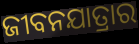
ଜୀବନଯାତ୍ରାର